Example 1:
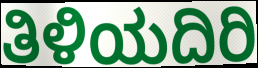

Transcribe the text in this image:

ತಿಳಿಯದಿರಿ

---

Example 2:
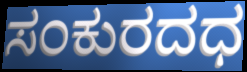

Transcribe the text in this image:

ಸಂಕುರದಧ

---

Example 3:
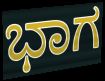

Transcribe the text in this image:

ಭಾಗ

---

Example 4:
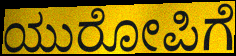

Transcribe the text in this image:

ಯುರೋಪಿಗೆ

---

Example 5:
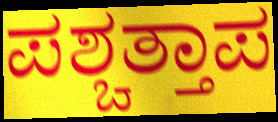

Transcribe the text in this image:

ಪಶ್ಚತ್ತಾಪ